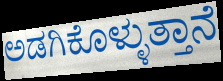
ಅಡಗಿಕೊಳ್ಳುತ್ತಾನೆ